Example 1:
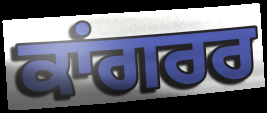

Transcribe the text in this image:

ਕਾਂਗਰਰ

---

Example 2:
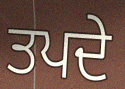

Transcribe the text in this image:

ਤਪਦੇ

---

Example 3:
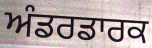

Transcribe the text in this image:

ਅੰਡਰਡਾਰਕ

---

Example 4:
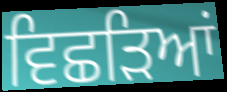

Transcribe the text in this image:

ਵਿਛੜਿਆਂ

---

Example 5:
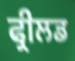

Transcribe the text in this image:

ਫ੍ਰੀਲਡ